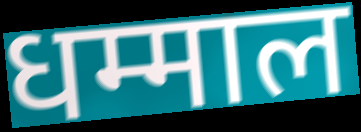
धम्माल